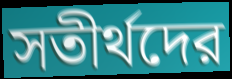
সতীর্থদের